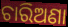
ଚାରିଅଣା